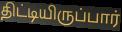
திட்டியிருப்பார்